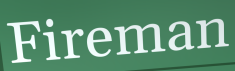
Fireman